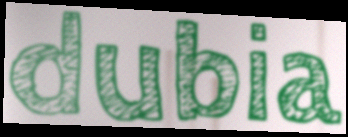
dubia